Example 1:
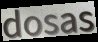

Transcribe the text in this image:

dosas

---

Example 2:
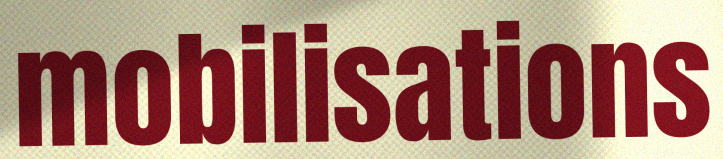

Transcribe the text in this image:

mobilisations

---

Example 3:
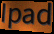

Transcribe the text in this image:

Ipad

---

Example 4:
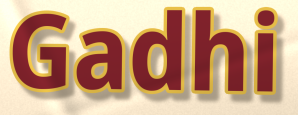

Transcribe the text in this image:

Gadhi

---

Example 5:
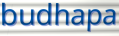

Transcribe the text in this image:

budhapa